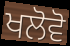
ਖਲੋਵੋ